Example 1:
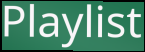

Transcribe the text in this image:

Playlist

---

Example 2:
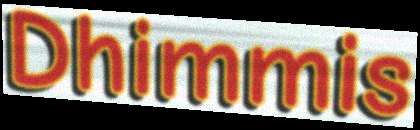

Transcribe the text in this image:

Dhimmis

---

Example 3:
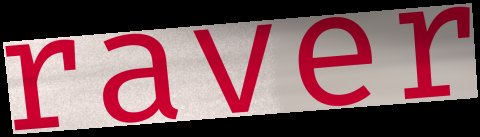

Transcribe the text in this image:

raver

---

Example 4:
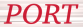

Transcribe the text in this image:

PORT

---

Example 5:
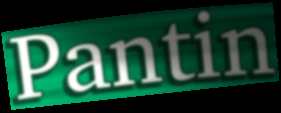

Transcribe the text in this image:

Pantin